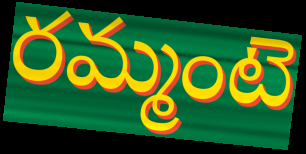
రమ్మంటె